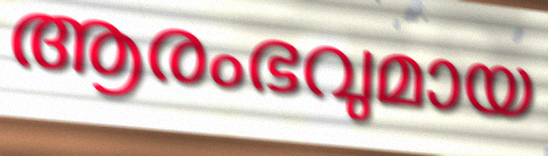
ആരംഭവുമായ